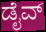
ಡೈವ್